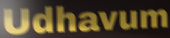
Udhavum